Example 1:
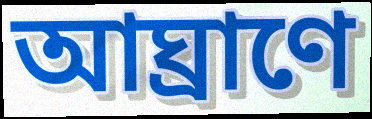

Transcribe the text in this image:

আঘ্রাণে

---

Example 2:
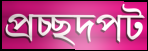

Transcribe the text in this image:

প্রচ্ছদপট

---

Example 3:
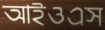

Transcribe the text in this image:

আইওএস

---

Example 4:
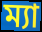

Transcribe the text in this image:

ম্যা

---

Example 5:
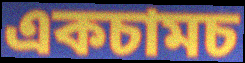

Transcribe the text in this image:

একচামচ